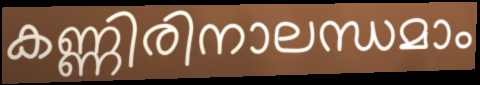
കണ്ണിരിനാലന്ധമാം